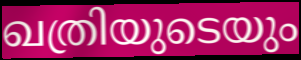
ഖത്രിയുടെയും